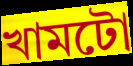
খামটো